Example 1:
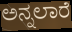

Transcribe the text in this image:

ಅನ್ನಲಾರೆ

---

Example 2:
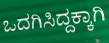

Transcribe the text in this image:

ಒದಗಿಸಿದ್ದಕ್ಕಾಗಿ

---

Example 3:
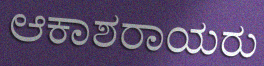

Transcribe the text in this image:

ಆಕಾಶರಾಯರು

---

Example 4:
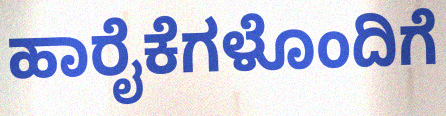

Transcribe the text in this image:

ಹಾರೈಕೆಗಳೊಂದಿಗೆ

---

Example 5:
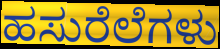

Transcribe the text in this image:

ಹಸುರೆಲೆಗಳು